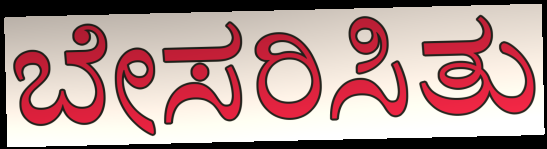
ಬೇಸರಿಸಿತು